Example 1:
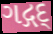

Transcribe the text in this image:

ગદ્ગદ્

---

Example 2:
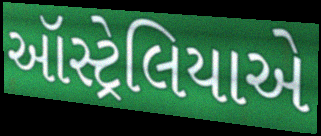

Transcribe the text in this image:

ઑસ્ટ્રેલિયાએ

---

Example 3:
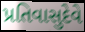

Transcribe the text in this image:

પ્રતિવાસુદેવે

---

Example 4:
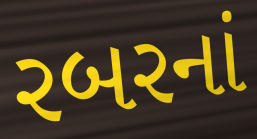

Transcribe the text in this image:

રબરનાં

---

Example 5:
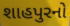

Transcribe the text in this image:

શાહપુરનો